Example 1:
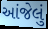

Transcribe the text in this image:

આંજેલું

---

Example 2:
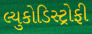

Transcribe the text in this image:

લ્યુકોડિસ્ટ્રોફી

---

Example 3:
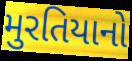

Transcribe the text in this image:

મુરતિયાનો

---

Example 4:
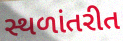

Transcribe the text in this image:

સ્થળાંતરીત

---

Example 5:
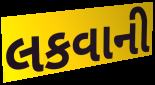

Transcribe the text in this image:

લકવાની